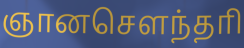
ஞானசெளந்தரி